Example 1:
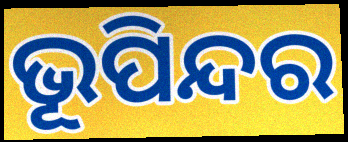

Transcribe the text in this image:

ଭୂପିନ୍ଦର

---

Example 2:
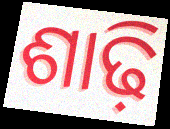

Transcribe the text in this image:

ଶାଢ଼ି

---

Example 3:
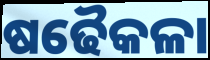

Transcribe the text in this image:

ଷଢୈକଳା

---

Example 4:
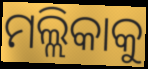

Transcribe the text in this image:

ମଲ୍ଲିକାକୁ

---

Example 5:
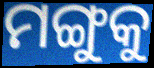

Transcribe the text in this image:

ମଙ୍ଗୁକୁ